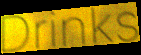
Drinks